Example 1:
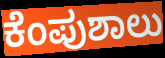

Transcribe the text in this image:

ಕೆಂಪುಶಾಲು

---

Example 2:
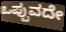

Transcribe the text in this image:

ಒಪ್ಪುವದೇ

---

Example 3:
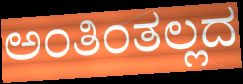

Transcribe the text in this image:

ಅಂತಿಂತಲ್ಲದ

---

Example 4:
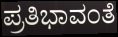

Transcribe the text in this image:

ಪ್ರತಿಭಾವಂತೆ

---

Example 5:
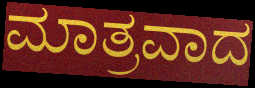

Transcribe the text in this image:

ಮಾತ್ರವಾದ